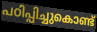
പഠിപ്പിച്ചുകൊണ്ട്